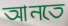
আনতে